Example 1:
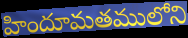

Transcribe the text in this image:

హిందూమతములోని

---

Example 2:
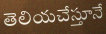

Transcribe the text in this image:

తెలియచేస్తూనే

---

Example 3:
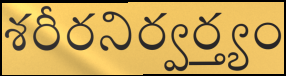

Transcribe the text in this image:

శరీరనిర్వర్త్యం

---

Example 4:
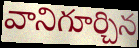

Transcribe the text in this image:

వానిగూర్చిన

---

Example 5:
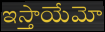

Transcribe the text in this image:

ఇస్తాయేమో